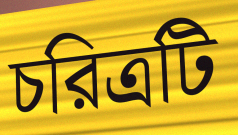
চরিত্রটি